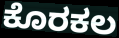
ಕೊರಕಲ